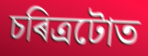
চৰিত্ৰটোত